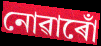
নোৱাৰোঁ